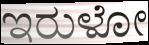
ಇರುಳೋ